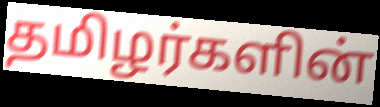
தமிழர்களின்